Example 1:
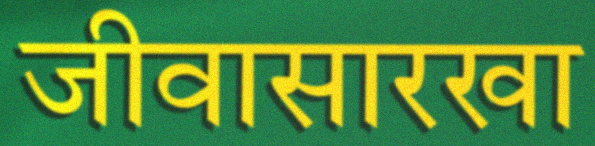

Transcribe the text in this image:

जीवासारखा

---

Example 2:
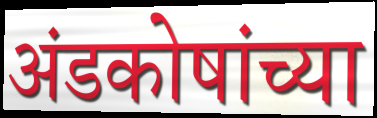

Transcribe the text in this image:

अंडकोषांच्या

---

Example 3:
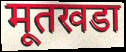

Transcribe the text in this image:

मूतखडा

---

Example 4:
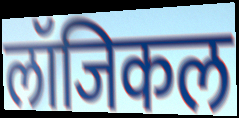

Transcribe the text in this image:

लॉजिकल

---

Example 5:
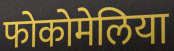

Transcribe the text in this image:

फोकोमेलिया